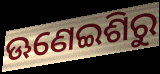
ଊଣେଇଶିରୁ